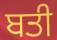
ਬਤੀ